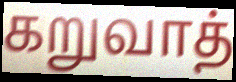
கறுவாத்